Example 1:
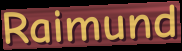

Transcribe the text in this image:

Raimund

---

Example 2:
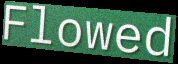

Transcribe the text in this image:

Flowed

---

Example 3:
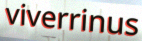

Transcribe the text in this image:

viverrinus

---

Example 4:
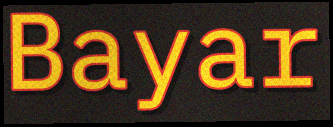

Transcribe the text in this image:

Bayar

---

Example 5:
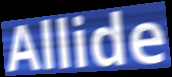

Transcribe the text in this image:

Allide